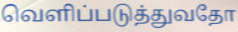
வெளிப்படுத்துவதோ